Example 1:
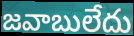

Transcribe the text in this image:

జవాబులేదు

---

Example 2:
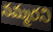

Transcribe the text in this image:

నమ్మరని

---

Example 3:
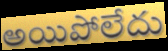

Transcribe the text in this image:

అయిపోలేదు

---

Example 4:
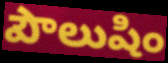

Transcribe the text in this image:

పౌలుషిం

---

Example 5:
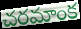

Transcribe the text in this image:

చరమాంక